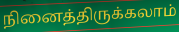
நினைத்திருக்கலாம்